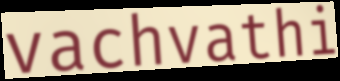
vachvathi